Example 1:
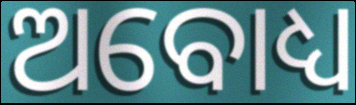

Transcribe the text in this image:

ଅବୋଧ୍ୟ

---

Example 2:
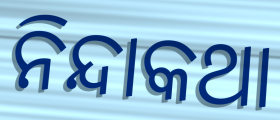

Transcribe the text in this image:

ନିନ୍ଦାକଥା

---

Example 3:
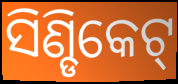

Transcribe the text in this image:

ସିଣ୍ଡିକେଟ୍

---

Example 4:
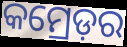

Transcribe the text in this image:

କମ୍ରେଡ଼ର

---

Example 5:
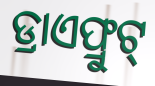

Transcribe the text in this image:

ଡ୍ରାଏଫ୍ରୁଟ୍